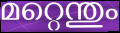
മറ്റെന്തും